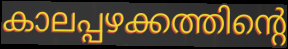
കാലപ്പഴക്കത്തിന്റെ